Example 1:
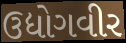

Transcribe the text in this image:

ઉદ્યોગવીર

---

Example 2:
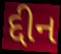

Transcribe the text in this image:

દ્દીન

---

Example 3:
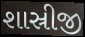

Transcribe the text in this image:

શાસ્રીજી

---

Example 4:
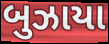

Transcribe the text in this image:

બુઝાયા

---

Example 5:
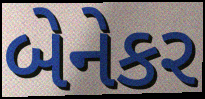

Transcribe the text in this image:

બેનેકર